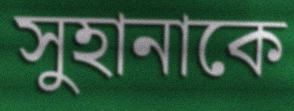
সুহানাকে